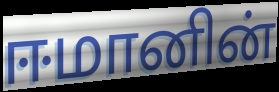
ஈமானின்